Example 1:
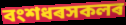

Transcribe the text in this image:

বংশধৰসকলৰ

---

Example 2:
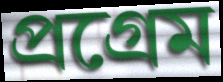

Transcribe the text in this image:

প্ৰগ্ৰেম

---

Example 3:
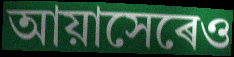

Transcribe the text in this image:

আয়াসেৰেও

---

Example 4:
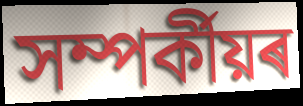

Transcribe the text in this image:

সম্পৰ্কীয়ৰ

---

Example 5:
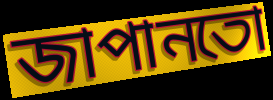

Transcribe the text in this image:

জাপানতো